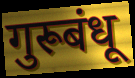
गुरूबंधू